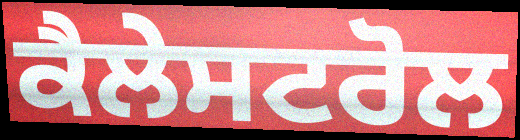
ਕੈਲੇਸਟਰੋਲ